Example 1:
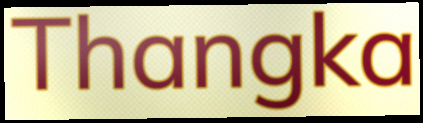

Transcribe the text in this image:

Thangka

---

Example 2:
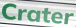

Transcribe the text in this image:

Crater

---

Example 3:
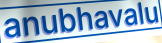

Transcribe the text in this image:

anubhavalu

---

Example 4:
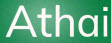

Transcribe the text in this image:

Athai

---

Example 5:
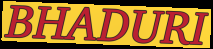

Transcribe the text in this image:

BHADURI